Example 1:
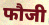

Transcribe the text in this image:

फौजी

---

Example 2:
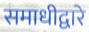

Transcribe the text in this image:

समाधीद्वारे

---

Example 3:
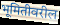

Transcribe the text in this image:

भूमितीवरील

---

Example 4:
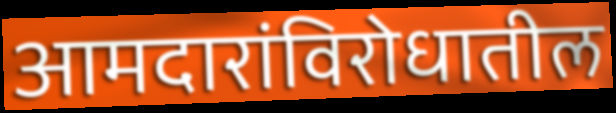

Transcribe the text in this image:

आमदारांविरोधातील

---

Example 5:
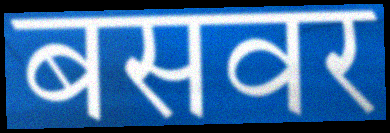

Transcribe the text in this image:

बसवर